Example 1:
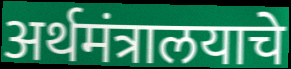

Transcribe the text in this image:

अर्थमंत्रालयाचे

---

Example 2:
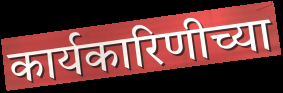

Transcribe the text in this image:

कार्यकारिणीच्या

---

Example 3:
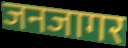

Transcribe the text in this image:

जनजागर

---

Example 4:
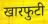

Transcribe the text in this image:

खारफुटी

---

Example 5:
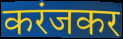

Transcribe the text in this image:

करंजकर